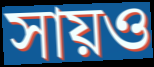
সায়ও